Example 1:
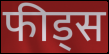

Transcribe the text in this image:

फीड्स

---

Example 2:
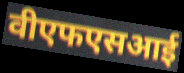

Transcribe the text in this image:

वीएफएसआई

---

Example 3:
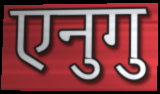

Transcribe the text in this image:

एनुगु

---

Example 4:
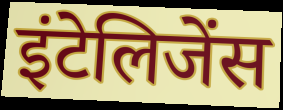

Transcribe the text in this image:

इंटेलिजेंस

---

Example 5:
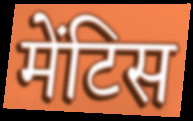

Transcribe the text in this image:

मेंटिस